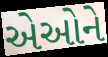
એઓને